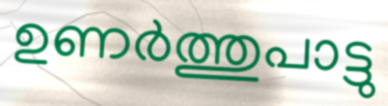
ഉണർത്തുപാട്ടു